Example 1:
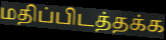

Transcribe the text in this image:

மதிப்பிடத்தக்க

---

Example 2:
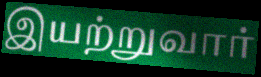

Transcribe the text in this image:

இயற்றுவார்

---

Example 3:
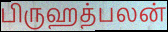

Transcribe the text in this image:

பிருஹத்பலன்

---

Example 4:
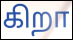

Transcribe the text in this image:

கிறா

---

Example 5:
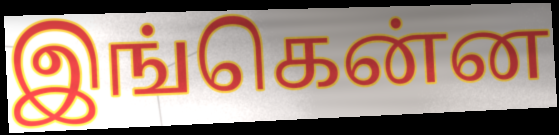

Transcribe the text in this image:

இங்கென்ன